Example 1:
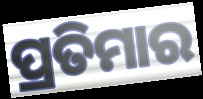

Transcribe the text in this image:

ପ୍ରତିମାର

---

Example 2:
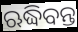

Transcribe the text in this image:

ଋଦ୍ଧିବନ୍ତ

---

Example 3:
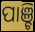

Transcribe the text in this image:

ପାଞ୍ଚି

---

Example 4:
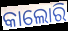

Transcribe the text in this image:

କାଲୋରି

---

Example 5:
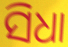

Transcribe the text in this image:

ସିଧା